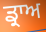
ਡ੍ਰਾਅ